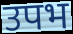
उपभ